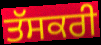
ਤੱਸਕਰੀ